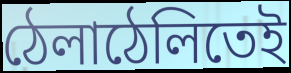
ঠেলাঠেলিতেই